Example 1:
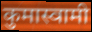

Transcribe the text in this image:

कुमास्वामी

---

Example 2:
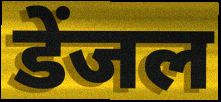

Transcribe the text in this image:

डेंजल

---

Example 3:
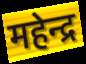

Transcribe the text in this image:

महेन्द्र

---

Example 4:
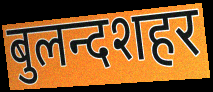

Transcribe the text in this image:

बुलन्दशहर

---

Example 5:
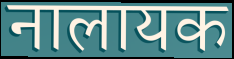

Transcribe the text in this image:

नालायक